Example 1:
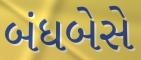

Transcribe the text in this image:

બંધબેસે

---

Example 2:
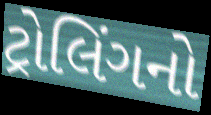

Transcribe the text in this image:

ટ્રોલિંગનો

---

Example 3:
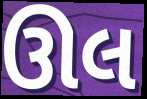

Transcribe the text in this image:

ઊલ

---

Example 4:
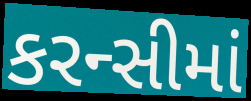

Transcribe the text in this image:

કરન્સીમાં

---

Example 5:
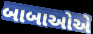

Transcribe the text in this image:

બાબાઓએ